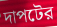
দাপটের